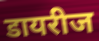
डायरीज